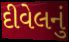
દીવેલનું